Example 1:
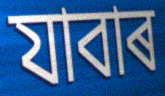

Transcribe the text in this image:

যাবাৰ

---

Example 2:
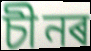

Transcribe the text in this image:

চীনৰ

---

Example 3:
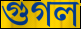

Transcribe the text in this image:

গুগল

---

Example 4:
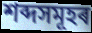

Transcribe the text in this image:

শব্দসমূহৰ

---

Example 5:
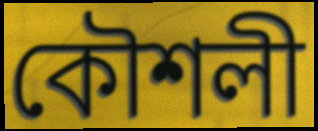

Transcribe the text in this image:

কৌশলী